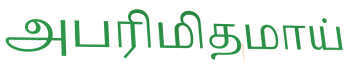
அபரிமிதமாய்